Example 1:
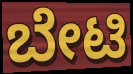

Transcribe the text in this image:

ಬೇಟಿ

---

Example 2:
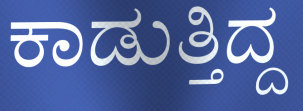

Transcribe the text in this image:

ಕಾಡುತ್ತಿದ್ದ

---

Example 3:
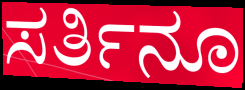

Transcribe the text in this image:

ಸರ್ತಿನೂ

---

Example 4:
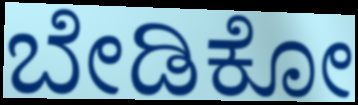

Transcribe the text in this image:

ಬೇಡಿಕೋ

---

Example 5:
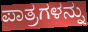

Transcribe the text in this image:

ಪಾತ್ರಗಳನ್ನು